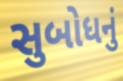
સુબોધનું